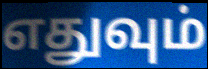
எதுவும்